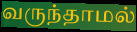
வருந்தாமல்